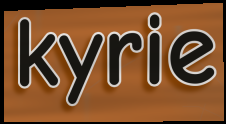
kyrie